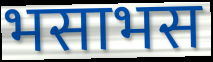
भसाभस